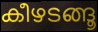
കീഴടങ്ങൂ